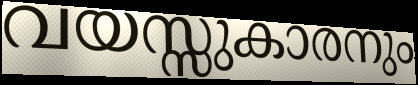
വയസ്സുകാരനും